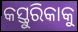
କସ୍ତୁରିକାକୁ